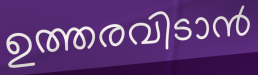
ഉത്തരവിടാൻ